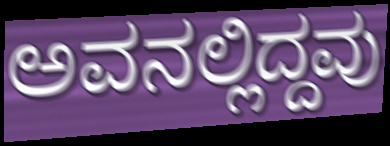
ಅವನಲ್ಲಿದ್ದವು